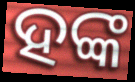
ହଙ୍କ